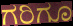
ಗರಿಗೂ